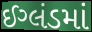
ઈગ્લંડમાં